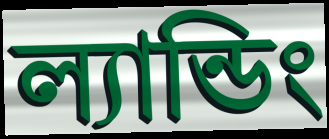
ল্যান্ডিং